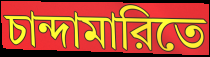
চান্দামারিতে